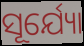
ସୂର୍ଯ୍ୟୋ